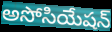
అసోసియేషన్